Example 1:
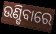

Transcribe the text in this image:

ଉଣ୍ଡିବାରେ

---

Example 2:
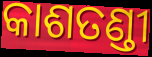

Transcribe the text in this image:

କାଶତଣ୍ଡୀ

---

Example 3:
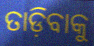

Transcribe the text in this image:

ତାଡ଼ିବାକୁ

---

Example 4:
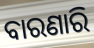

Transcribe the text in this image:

ବାରଣାରି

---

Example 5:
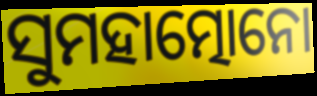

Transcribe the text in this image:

ସୁମହାତ୍ମୋନୋ